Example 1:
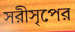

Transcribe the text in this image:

সরীসৃপের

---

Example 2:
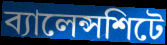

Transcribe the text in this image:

ব্যালেন্সশিটে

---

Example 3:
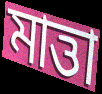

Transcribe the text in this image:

মাত্তা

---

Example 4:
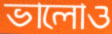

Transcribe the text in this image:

ভালোও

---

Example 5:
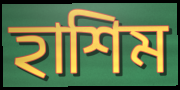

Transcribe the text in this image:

হাশিম